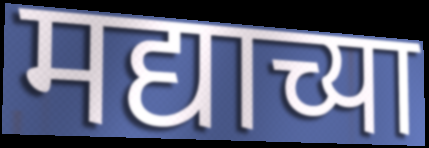
मद्याच्या